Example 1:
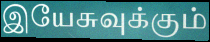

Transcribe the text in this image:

இயேசுவுக்கும்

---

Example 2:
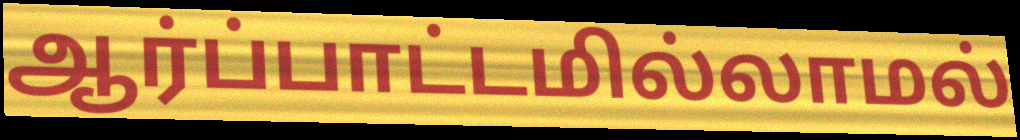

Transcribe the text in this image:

ஆர்ப்பாட்டமில்லாமல்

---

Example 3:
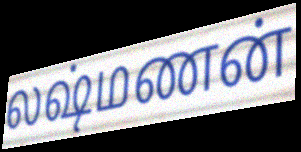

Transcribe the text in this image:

லஷ்மணன்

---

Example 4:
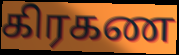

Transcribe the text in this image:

கிரகண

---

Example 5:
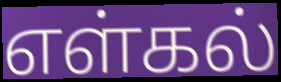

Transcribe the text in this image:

எள்கல்